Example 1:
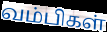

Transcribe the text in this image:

வம்பிகள்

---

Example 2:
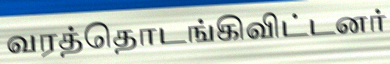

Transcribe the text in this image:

வரத்தொடங்கிவிட்டனர்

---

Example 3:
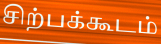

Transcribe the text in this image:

சிற்பக்கூடம்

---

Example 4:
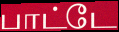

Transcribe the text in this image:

பாட்டே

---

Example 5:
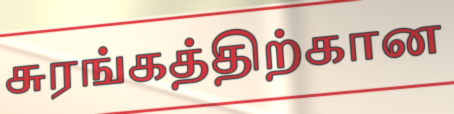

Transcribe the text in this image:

சுரங்கத்திற்கான